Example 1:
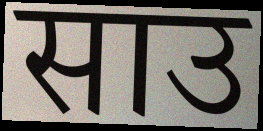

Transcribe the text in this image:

साउ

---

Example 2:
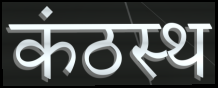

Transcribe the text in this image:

कंठस्थ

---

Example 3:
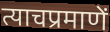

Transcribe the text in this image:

त्याचप्रमाणें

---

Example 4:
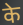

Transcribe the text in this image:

के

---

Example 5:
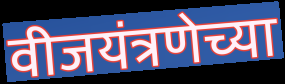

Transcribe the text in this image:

वीजयंत्रणेच्या